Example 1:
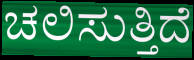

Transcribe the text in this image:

ಚಲಿಸುತ್ತಿದೆ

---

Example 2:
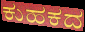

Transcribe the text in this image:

ಕುಹಕದ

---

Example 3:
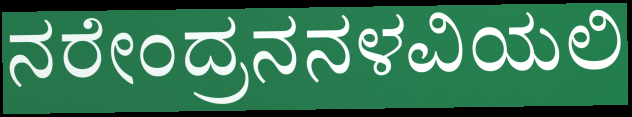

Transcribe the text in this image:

ನರೇಂದ್ರನನಳವಿಯಲಿ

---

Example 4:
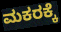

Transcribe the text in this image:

ಮಕರಕ್ಕೆ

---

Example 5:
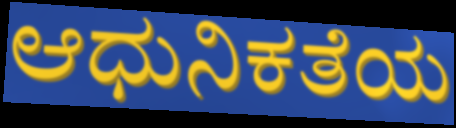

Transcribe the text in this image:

ಆಧುನಿಕತೆಯ